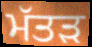
ਮੱਤੜ